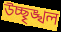
উচ্ছৃঙ্খল